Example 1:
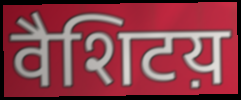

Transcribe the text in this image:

वैशिटय़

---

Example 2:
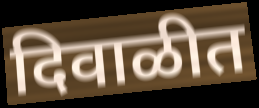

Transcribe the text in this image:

दिवाळीत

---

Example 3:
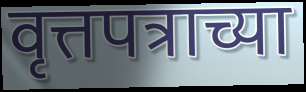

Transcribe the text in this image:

वृत्तपत्राच्या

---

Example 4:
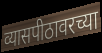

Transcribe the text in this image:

व्यासपीठावरच्या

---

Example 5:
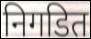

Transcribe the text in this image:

निगडित